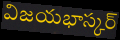
విజయభాస్కర్